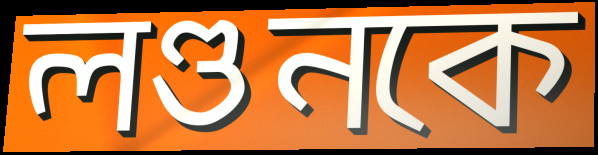
লণ্ডনকে